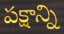
పక్షాన్ని